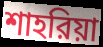
শাহরিয়া